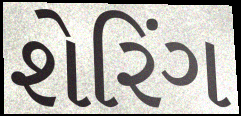
શેરિંગ